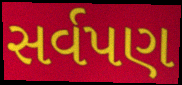
સર્વપણ